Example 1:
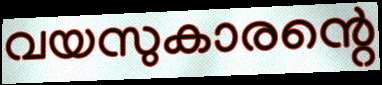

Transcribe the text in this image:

വയസുകാരന്റെ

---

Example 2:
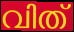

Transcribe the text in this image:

വിത്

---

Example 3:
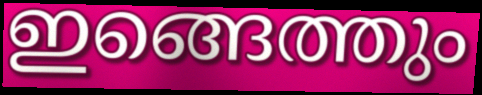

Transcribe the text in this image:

ഇങ്ങെത്തും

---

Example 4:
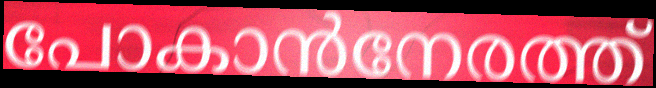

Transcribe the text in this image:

പോകാൻനേരത്ത്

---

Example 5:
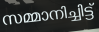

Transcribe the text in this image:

സമ്മാനിച്ചിട്ട്